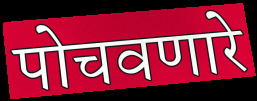
पोचवणारे